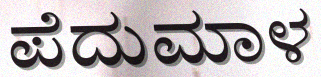
ಪೆದುಮಾಳ